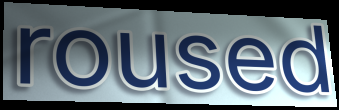
roused